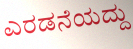
ಎರಡನೆಯದ್ದು